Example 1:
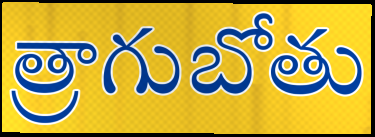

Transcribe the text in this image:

త్రాగుబోతు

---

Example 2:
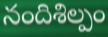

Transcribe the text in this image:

నందిశిల్పం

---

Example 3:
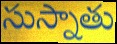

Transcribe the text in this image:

సుస్నాతు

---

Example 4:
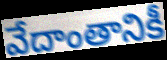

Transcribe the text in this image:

వేదాంతానికీ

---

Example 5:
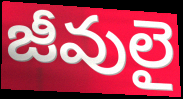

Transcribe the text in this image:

జీవులై